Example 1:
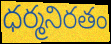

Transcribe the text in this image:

ధర్మనిరతం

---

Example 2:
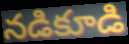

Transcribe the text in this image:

నడికూడి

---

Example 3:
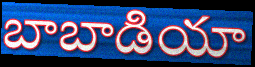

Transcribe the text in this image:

బాబాడియా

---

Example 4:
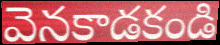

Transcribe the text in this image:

వెనకాడకండి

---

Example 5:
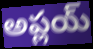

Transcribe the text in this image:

అప్లయ్